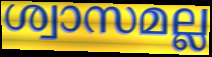
ശ്വാസമല്ല